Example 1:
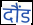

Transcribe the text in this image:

दौंड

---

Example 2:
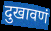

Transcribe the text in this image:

दुखावणं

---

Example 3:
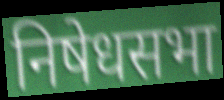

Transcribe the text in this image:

निषेधसभा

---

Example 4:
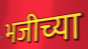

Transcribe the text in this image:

भजीच्या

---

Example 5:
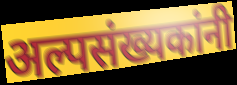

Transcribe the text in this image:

अल्पसंख्यकांनी